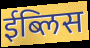
ईब्लिस